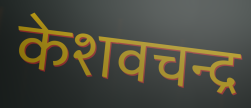
केशवचन्द्र